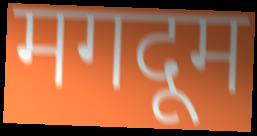
मगदूम